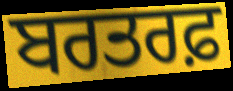
ਬਰਤਰਫ਼